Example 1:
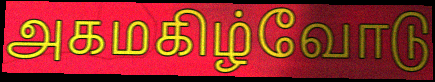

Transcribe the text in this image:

அகமகிழ்வோடு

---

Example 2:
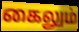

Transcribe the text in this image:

கைலும்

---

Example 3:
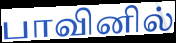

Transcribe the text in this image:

பாவினில்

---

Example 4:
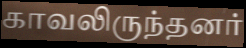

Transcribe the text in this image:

காவலிருந்தனர்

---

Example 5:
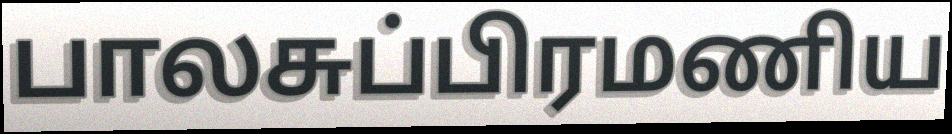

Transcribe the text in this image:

பாலசுப்பிரமணிய